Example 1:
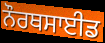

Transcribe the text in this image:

ਨੌਰਥਸਾਈਡ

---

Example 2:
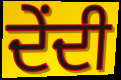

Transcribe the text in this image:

ਦੇਂਦੀ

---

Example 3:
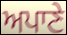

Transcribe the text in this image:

ਅਪਾਣੇ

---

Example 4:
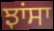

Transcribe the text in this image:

ਝਾਂਸਾ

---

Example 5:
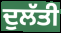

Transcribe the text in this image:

ਦੁਲੱਤੀ